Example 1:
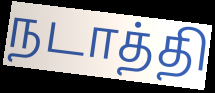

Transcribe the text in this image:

நடாத்தி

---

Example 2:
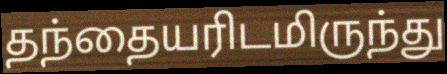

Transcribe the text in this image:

தந்தையரிடமிருந்து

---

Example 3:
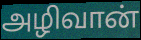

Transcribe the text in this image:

அழிவான்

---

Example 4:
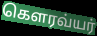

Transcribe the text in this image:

கௌரவ்யர்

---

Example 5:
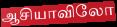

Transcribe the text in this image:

ஆசியாவிலோ